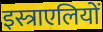
इस्त्राएलियों